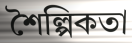
শৈল্পিকতা